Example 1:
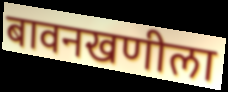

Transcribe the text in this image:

बावनखणीला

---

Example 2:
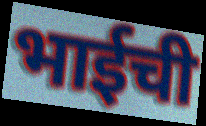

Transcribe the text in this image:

भाईची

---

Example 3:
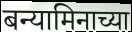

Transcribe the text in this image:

बन्यामिनाच्या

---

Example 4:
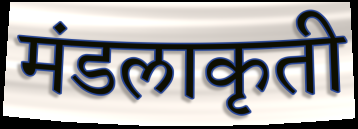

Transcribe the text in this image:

मंडलाकृती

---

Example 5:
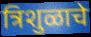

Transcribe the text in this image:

त्रिशुळाचे